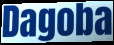
Dagoba